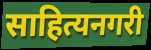
साहित्यनगरी